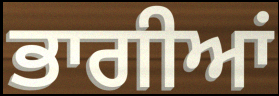
ਭਾਗੀਆਂ